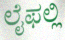
ಲೈಫಲ್ಲಿ